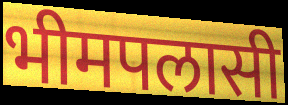
भीमपलासी